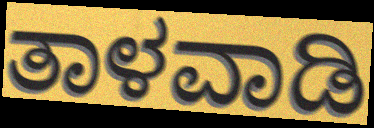
ತಾಳವಾಡಿ